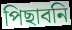
পিছাবনি